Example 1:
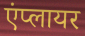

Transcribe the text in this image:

एंप्लायर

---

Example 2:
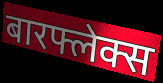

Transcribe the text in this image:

बारफ्लेक्स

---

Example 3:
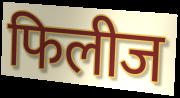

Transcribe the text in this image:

फिलीज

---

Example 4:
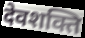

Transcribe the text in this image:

देवशक्ति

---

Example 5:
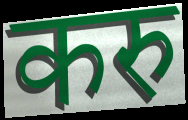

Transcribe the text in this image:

करु